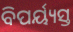
ବିପର୍ୟ୍ୟସ୍ତ